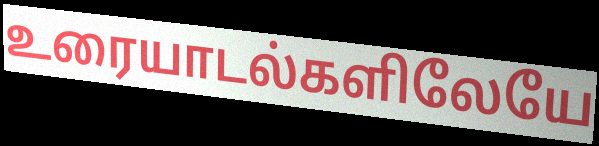
உரையாடல்களிலேயே